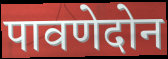
पावणेदोन